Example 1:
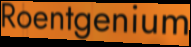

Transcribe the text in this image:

Roentgenium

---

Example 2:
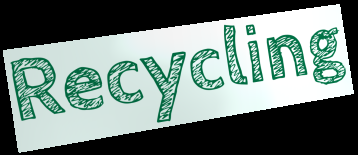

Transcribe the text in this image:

Recycling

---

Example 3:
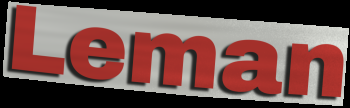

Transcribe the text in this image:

Leman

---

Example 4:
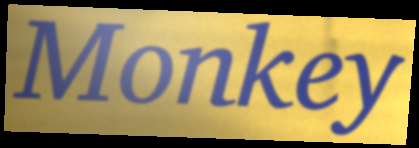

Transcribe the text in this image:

Monkey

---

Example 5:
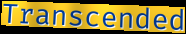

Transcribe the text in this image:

Transcended